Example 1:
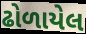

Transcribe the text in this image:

ઢોળાયેલ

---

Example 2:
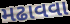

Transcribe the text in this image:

મઢાવવા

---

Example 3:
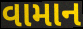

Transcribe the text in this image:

વામાન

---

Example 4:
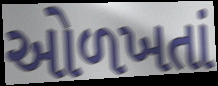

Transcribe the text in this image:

ઓળખતાં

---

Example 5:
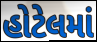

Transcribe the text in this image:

હોટેલમાં